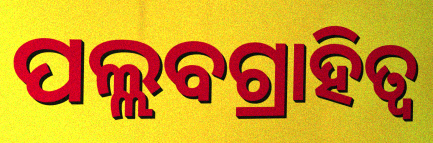
ପଲ୍ଲବଗ୍ରାହିତ୍ୱ